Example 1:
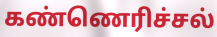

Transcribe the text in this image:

கண்ணெரிச்சல்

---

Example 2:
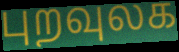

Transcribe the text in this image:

புறவுலக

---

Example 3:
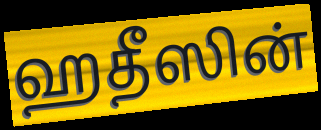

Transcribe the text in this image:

ஹதீஸின்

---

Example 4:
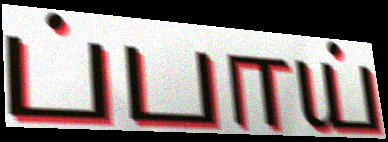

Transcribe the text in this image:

ப்பாய்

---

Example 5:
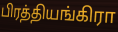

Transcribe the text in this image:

பிரத்தியங்கிரா